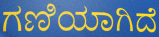
ಗಣಿಯಾಗಿದೆ